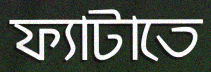
ফ্যাটাতে